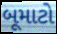
બૂમાટો